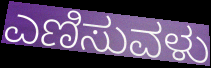
ಎಣಿಸುವಳು